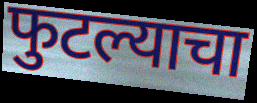
फुटल्याचा